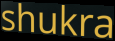
shukra